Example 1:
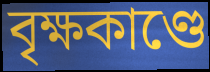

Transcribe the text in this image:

বৃক্ষকাণ্ডে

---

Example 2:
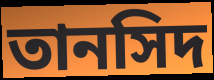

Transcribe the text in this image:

তানসিদ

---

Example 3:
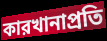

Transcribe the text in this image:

কারখানাপ্রতি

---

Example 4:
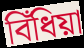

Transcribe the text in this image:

বিঁধিয়া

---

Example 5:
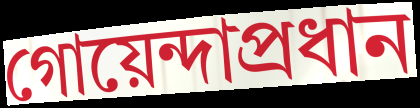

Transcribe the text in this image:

গোয়েন্দাপ্রধান